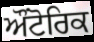
ਔਂਟੋਰਿਕ